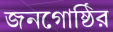
জনগোষ্ঠির